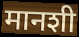
मानशी